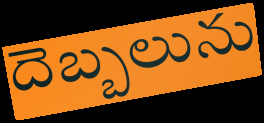
దెబ్బలును